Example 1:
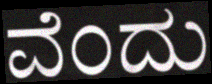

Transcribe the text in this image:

ವೆಂದು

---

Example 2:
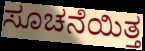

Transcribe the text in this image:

ಸೂಚನೆಯಿತ್ತ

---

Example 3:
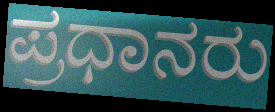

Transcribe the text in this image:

ಪ್ರಧಾನರು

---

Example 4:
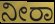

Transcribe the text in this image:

ನೀರಾ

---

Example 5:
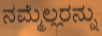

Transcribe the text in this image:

ನಮ್ಮೆಲ್ಲರನ್ನು